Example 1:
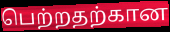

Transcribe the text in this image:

பெற்றதற்கான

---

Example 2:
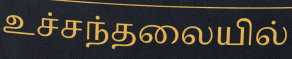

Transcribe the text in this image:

உச்சந்தலையில்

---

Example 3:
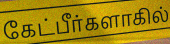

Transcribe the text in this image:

கேட்பீர்களாகில்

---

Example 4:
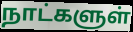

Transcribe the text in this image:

நாட்களுள்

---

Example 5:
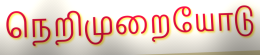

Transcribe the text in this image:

நெறிமுறையோடு